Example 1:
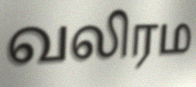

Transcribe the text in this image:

வலிரம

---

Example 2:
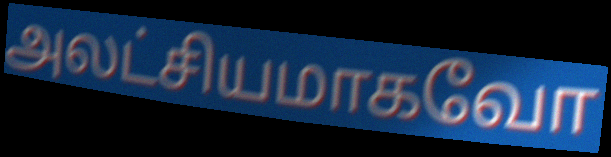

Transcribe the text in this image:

அலட்சியமாகவோ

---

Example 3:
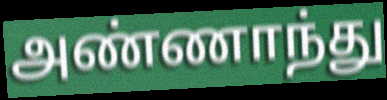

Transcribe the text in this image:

அண்ணாந்து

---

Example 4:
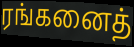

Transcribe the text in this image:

ரங்கனைத்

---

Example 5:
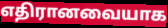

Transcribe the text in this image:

எதிரானவையாக